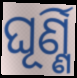
ଘୂର୍ଣ୍ଣି